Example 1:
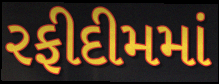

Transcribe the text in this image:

રફીદીમમાં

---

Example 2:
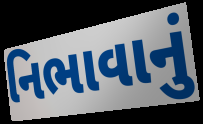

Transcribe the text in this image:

નિભાવાનું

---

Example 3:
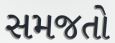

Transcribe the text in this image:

સમજતો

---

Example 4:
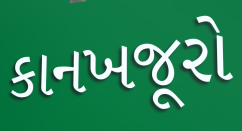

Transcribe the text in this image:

કાનખજૂરો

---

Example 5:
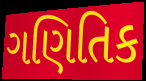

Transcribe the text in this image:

ગણિતિક